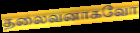
தலைவனாகவோ